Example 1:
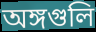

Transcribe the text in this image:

অঙ্গগুলি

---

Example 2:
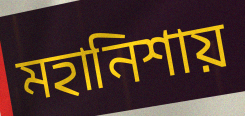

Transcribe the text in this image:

মহানিশায়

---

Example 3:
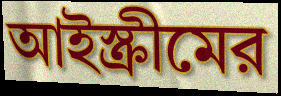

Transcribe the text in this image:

আইস্ক্রীমের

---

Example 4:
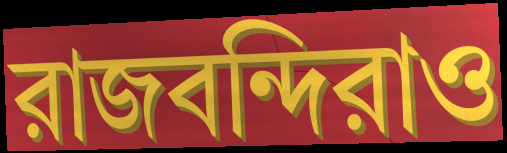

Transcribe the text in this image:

রাজবন্দিরাও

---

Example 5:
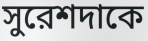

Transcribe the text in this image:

সুরেশদাকে